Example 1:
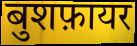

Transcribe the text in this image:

बुशफ़ायर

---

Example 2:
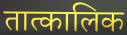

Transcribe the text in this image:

तात्कालिक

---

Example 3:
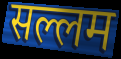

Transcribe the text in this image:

सल्‍लम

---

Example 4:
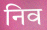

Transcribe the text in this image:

निव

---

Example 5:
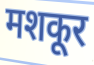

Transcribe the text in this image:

मशकूर